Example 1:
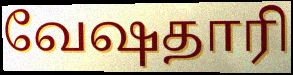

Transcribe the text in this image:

வேஷதாரி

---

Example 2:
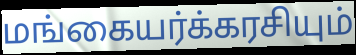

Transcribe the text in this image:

மங்கையர்க்கரசியும்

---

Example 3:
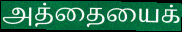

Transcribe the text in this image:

அத்தையைக்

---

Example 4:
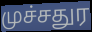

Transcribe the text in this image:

முச்சதுர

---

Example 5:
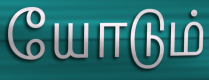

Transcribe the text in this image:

யோடும்